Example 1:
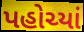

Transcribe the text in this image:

પહોચ્યાં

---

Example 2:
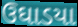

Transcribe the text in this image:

ઉઘાડયા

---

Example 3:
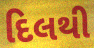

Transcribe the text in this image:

દિલથી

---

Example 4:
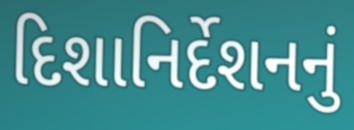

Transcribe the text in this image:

દિશાનિર્દેશનનું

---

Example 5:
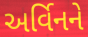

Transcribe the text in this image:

અર્વિનને